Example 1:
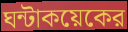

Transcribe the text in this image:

ঘন্টাকয়েকের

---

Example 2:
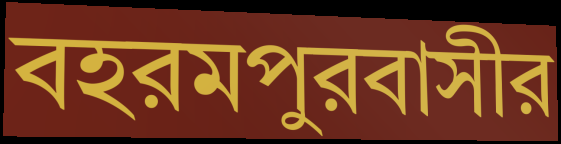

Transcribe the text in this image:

বহরমপুরবাসীর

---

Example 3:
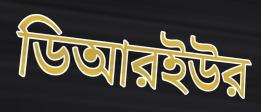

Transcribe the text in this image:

ডিআরইউর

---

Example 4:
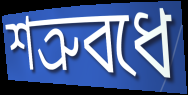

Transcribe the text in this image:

শত্রুবধে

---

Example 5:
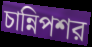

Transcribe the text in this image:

চান্নিপশর